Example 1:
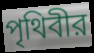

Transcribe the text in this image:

পৃথিবীর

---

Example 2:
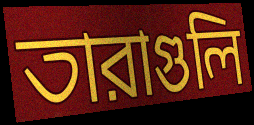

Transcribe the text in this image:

তারাগুলি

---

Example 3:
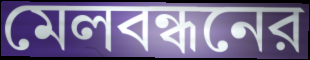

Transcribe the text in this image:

মেলবন্ধনের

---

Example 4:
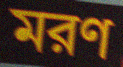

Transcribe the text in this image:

মরণ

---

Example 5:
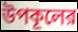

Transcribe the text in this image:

উপকূলের